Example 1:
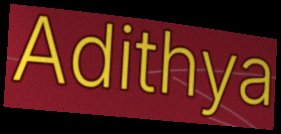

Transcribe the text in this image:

Adithya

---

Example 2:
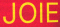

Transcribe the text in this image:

JOIE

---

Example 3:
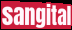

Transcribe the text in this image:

sangital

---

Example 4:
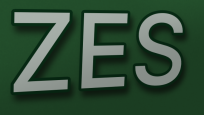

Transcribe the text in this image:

ZES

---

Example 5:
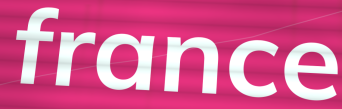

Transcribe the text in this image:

france